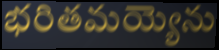
భరితమయ్యెను